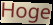
Hoge